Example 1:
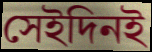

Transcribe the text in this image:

সেইদিনই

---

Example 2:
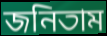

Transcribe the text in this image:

জনিতাম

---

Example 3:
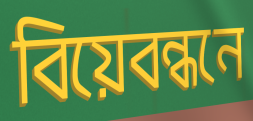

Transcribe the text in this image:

বিয়েবন্ধনে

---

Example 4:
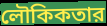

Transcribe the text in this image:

লৌকিকতার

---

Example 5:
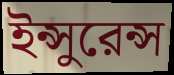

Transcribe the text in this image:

ইন্সুরেন্স